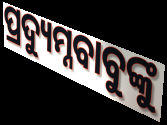
ପ୍ରଦ୍ୟୁମ୍ନବାବୁଙ୍କୁ